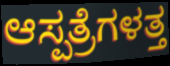
ಆಸ್ಪತ್ರೆಗಳತ್ತ